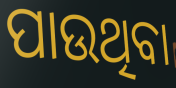
ପାଉଥିବା